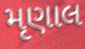
મૃણાલ